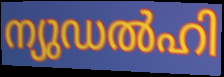
ന്യുഡൽഹി